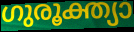
ഗുരൂക്ത്യാ